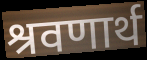
श्रवणार्थ